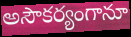
అసౌకర్యంగానూ